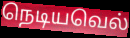
நெடியவெல்